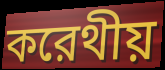
করেথীয়